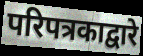
परिपत्रकाद्वारे